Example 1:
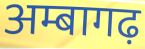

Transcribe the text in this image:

अम्बागढ़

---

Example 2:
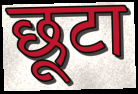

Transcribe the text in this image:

छूटा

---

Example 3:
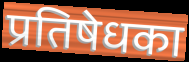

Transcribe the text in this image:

प्रतिषेधका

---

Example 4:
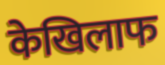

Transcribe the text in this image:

केखिलाफ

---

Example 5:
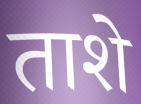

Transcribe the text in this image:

ताशे